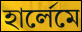
হার্লেমে